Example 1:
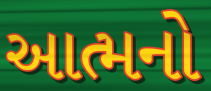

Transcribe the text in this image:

આત્મનો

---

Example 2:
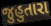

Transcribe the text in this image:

જુહુતારા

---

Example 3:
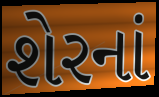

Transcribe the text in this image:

શેરનાં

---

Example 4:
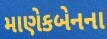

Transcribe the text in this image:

માણેકબેનના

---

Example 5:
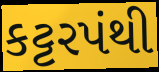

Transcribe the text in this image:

કટ્ટરપંથી